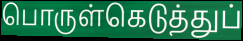
பொருள்கெடுத்துப்